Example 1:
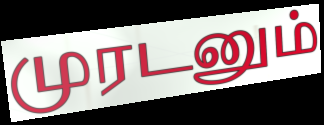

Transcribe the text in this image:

முரடனும்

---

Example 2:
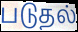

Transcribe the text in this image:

படுதல்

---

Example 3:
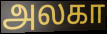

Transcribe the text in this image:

அலகா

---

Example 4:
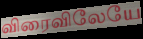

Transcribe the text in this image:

விரைவிலேயே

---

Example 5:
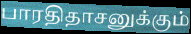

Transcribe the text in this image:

பாரதிதாசனுக்கும்